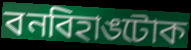
বনবিহাঙটোক